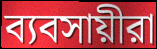
ব্যবসায়ীরা